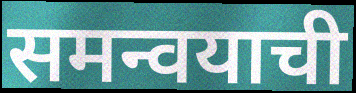
समन्वयाची